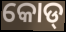
କୋଡ୍